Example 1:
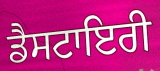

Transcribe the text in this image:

ਡੈਸਟਾਇਰੀ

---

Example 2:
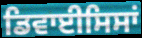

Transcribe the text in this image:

ਡਿਵਾਈਸਿਸਾਂ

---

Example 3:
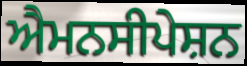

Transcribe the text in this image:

ਐਮਨਸੀਪੇਸ਼ਨ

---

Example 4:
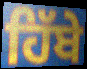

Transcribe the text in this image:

ਹਿੱਬੇ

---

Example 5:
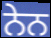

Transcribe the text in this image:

ਨੇਨ